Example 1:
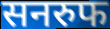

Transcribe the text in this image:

सनरुफ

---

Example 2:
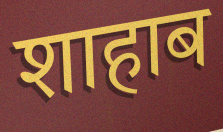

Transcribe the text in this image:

शाहाब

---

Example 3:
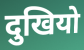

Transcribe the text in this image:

दुखियो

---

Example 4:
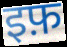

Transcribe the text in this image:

इफ़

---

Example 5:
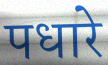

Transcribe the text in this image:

पधारे